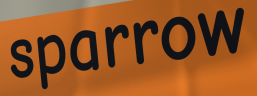
sparrow